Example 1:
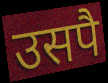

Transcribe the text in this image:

उसपै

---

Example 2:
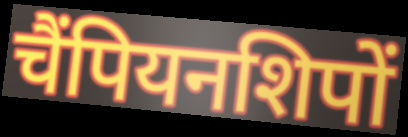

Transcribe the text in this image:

चैंपियनशिपों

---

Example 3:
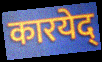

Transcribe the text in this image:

कारयेद्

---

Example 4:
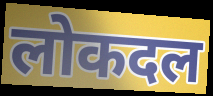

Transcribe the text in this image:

लोकदल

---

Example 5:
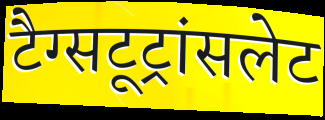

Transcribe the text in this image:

टैग्सटूट्रांसलेट